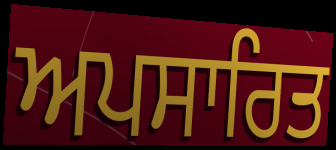
ਅਪਸਾਰਿਤ